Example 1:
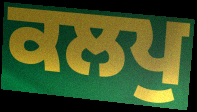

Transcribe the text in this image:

ਕਲਪੁ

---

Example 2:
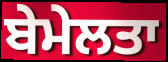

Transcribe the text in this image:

ਬੇਮੇਲਤਾ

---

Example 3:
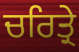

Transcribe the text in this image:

ਚਰਿਤ੍ਰੇ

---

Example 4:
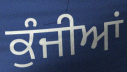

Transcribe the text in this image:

ਕੁੰਜੀਆਂ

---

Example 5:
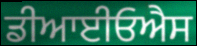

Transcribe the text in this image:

ਡੀਆਈਓਐਸ